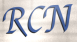
RCN